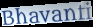
Bhavanti